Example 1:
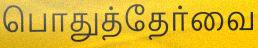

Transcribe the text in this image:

பொதுத்தேர்வை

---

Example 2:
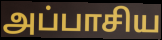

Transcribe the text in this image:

அப்பாசிய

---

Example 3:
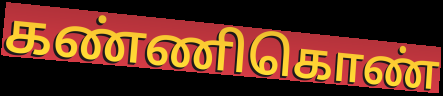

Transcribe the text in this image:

கண்ணிகொண்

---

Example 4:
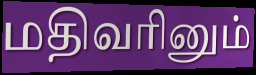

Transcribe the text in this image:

மதிவரினும்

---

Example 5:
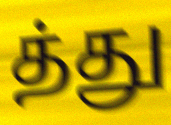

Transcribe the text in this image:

த்து